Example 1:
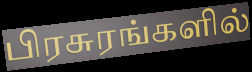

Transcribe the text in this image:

பிரசுரங்களில்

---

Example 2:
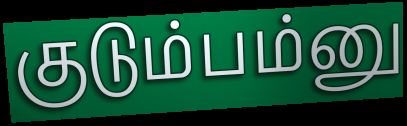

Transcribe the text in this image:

குடும்பம்னு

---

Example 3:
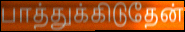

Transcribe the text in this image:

பாத்துக்கிடுதேன்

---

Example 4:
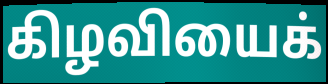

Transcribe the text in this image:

கிழவியைக்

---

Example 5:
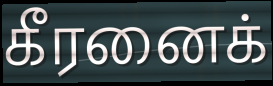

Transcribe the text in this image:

கீரனைக்